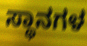
ಸ್ಥಾನಗಳ